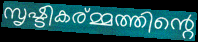
സൃഷ്ടികര്മ്മത്തിന്റെ